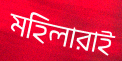
মহিলারাই